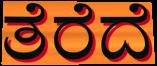
ತೆರೆದೆ